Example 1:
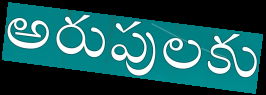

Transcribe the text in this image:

అరుపులకు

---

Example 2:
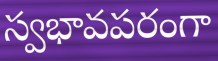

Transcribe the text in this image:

స్వభావపరంగా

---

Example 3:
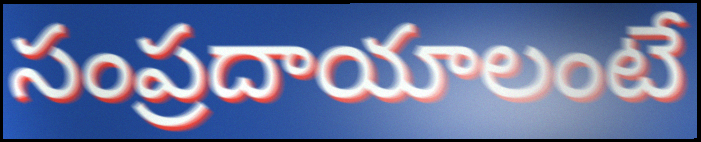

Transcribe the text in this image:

సంప్రదాయాలంటే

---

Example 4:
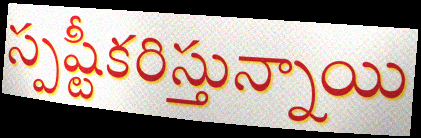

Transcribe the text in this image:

స్పష్టీకరిస్తున్నాయి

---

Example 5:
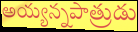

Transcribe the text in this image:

అయ్యన్నపాత్రుడు